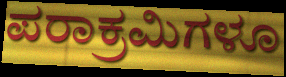
ಪರಾಕ್ರಮಿಗಳೂ